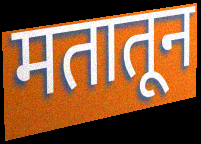
मतातून